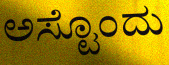
ಅಸ್ಟೊಂದು